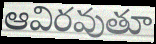
ఆవిరవుతూ